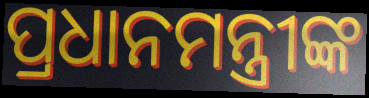
ପ୍ରଧାନମନ୍ତ୍ରୀଙ୍କ